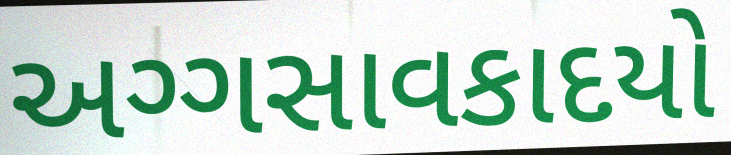
અગ્ગસાવકાદયો